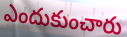
ఎందుకుంచారు